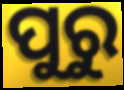
ପୁରୁ